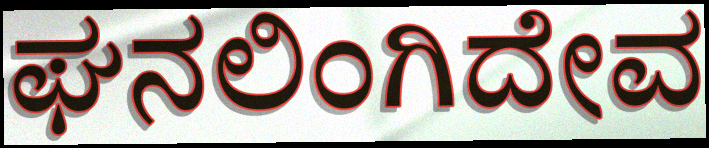
ಘನಲಿಂಗಿದೇವ